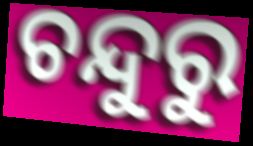
ଚନ୍ଦୁରୁ